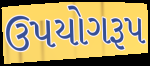
ઉપયોગરૂપ